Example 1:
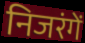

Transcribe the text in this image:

निजरंगें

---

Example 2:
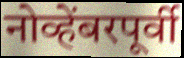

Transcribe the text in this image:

नोव्हेंबरपूर्वी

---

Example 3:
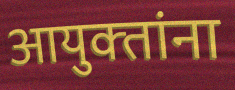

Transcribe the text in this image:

आयुक्‍तांना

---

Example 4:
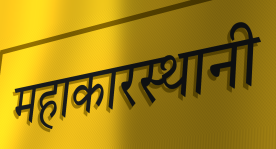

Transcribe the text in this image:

महाकारस्थानी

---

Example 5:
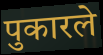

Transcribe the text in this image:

पुकारले